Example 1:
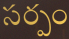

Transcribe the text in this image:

సర్పం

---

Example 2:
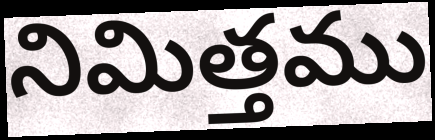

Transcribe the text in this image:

నిమిత్తము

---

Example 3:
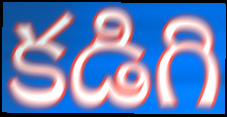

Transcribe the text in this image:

కడిగి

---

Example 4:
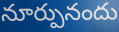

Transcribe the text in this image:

నూర్పునందు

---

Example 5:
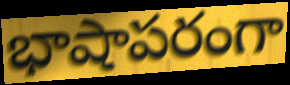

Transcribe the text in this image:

భాషాపరంగా